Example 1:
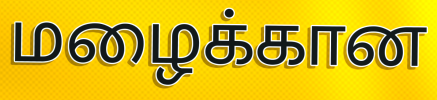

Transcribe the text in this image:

மழைக்கான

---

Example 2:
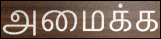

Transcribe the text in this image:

அமைக்க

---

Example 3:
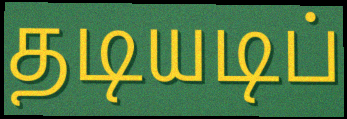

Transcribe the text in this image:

தடியடிப்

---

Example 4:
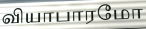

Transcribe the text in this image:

வியாபாரமோ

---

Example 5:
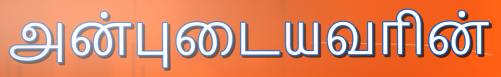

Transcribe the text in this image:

அன்புடையவரின்